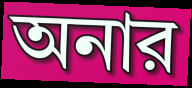
অনার